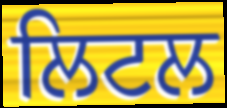
ਲਿਟਲ